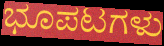
ಭೂಪಟಗಳು